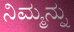
ನಿಮ್ಮನ್ನು